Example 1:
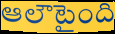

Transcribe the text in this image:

ఆలౌటైంది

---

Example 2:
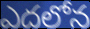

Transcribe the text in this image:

ఎదలోన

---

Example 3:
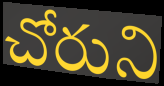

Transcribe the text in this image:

చోరుని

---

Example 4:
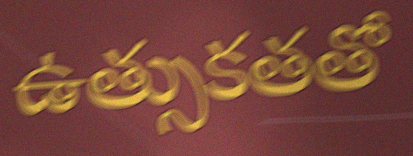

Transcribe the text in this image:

ఉత్సుకతతో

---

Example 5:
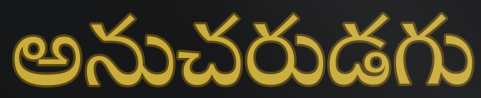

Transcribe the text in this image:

అనుచరుడగు